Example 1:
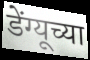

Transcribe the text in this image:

डेंग्यूच्या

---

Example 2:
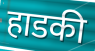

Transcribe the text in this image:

हाडकी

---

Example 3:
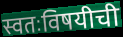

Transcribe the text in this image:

स्वतःविषयीची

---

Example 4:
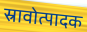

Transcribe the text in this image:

स्रावोत्पादक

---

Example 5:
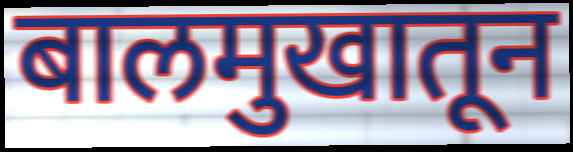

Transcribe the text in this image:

बालमुखातून